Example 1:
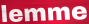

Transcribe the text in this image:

lemme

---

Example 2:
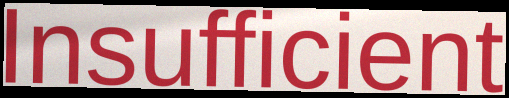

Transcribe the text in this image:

Insufficient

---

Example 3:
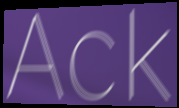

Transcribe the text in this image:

Ack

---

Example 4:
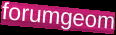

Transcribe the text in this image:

forumgeom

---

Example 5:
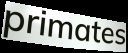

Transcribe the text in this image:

primates